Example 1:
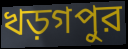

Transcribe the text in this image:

খড়গপুর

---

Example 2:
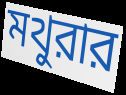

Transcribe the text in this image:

মথুরার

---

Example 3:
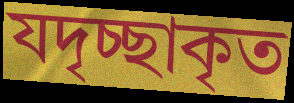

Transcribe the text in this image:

যদৃচ্ছাকৃত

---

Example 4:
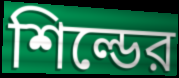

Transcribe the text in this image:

শিল্ডের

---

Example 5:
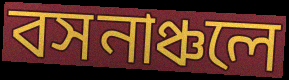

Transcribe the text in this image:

বসনাঞ্চলে